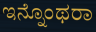
ಇನ್ನೊಂಥರಾ